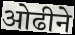
ओढीने